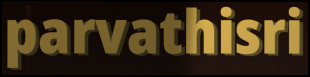
parvathisri